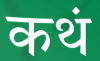
कथं